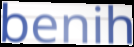
benih